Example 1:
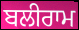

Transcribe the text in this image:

ਬਲੀਰਾਮ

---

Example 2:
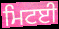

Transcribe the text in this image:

ਮਿਟਈ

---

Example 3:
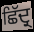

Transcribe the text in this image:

ਛਿੱਦ੍ਰ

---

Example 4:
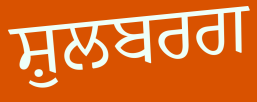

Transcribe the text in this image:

ਸ਼ੁਲਬਰਗ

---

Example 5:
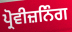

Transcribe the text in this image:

ਪ੍ਰੋਵੀਜ਼ਨਿੰਗ